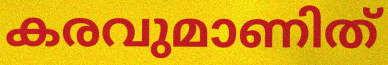
കരവുമാണിത്